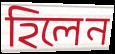
হিলেন